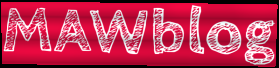
MAWblog